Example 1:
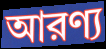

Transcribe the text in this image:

আরণ্য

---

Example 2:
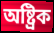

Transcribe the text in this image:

অষ্ট্রিক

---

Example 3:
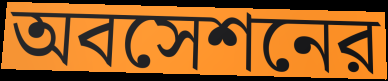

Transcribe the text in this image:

অবসেশনের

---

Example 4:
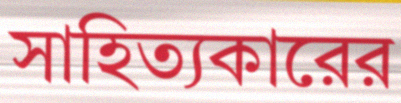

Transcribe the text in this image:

সাহিত্যকারের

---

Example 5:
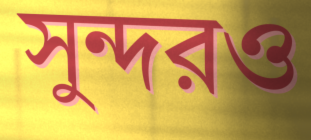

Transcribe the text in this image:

সুন্দরও